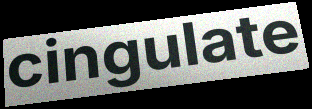
cingulate